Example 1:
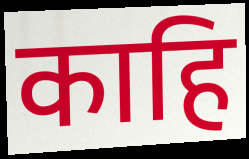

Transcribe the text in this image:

काहि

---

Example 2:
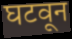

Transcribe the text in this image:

घटवून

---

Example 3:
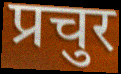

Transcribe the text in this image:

प्रचुर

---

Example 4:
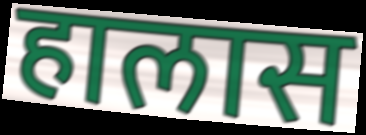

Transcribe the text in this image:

हालास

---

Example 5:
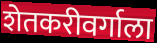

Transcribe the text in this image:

शेतकरीवर्गाला